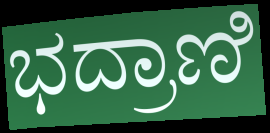
ಭದ್ರಾಣಿ